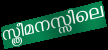
സ്ത്രീമനസ്സിലെ